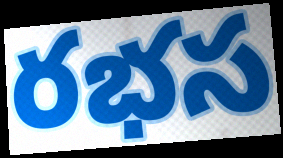
రభస